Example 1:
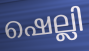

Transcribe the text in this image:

ഷെല്ലി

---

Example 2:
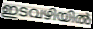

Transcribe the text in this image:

ഇടവഴിയിൽ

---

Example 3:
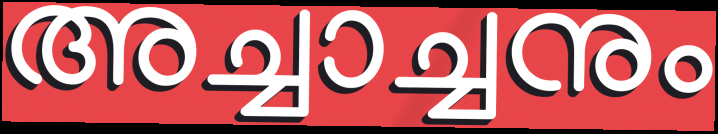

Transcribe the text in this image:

അച്ചാച്ചനും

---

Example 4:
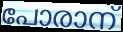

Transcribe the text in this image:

പോരാന്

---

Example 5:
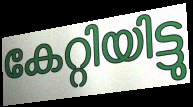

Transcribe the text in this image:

കേറ്റിയിട്ടു